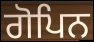
ਗੋਪਿਨ